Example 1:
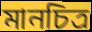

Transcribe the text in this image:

মানচিত্র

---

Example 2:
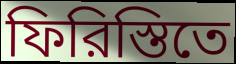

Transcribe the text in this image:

ফিরিস্তিতে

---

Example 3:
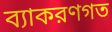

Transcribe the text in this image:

ব্যাকরণগত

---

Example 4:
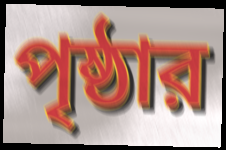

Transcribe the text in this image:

পৃষ্ঠার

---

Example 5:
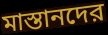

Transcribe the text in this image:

মাস্তানদের